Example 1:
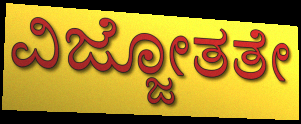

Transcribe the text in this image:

ವಿಜ್ಜೋತತೇ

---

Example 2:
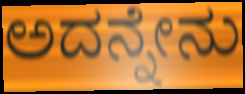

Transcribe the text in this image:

ಅದನ್ನೇನು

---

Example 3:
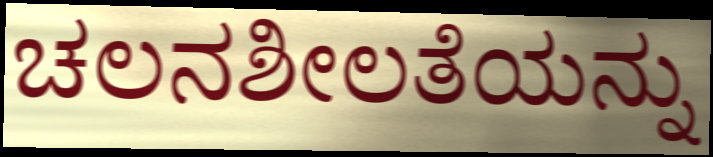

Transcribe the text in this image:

ಚಲನಶೀಲತೆಯನ್ನು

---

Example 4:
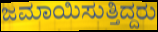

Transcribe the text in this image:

ಜಮಾಯಿಸುತ್ತಿದ್ದರು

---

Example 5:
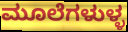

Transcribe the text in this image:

ಮೂಲೆಗಳುಳ್ಳ